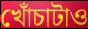
খোঁচাটাও